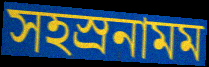
সহস্রনামম